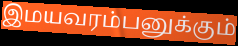
இமயவரம்பனுக்கும்